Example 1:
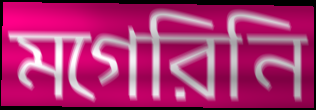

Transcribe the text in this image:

মগেরিনি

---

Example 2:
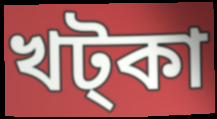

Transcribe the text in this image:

খট্কা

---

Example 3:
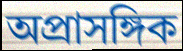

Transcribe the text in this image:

অপ্রাসঙ্গিক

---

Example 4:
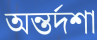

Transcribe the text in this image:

অন্তর্দশা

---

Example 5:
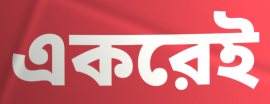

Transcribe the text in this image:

একরেই